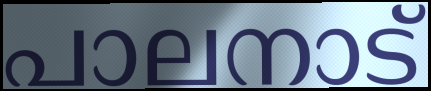
പാലനാട്